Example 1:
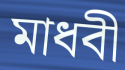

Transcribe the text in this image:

মাধবী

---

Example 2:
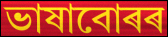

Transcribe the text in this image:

ভাষাবোৰৰ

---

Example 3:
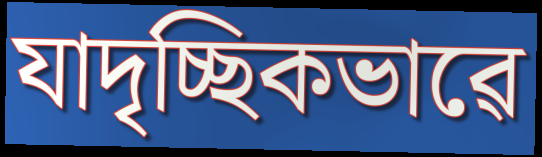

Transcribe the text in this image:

যাদৃচ্ছিকভাৱে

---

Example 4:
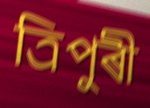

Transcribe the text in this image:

ত্ৰিপুৰী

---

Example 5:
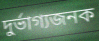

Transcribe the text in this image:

দুৰ্ভাগ্যজনক